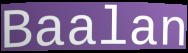
Baalan